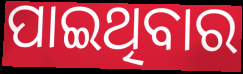
ପାଇଥିବାର